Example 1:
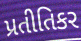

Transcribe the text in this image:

પ્રતીતિકર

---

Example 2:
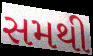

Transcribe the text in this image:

સમથી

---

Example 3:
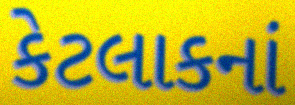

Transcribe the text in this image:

કેટલાકનાં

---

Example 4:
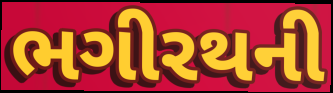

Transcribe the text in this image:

ભગીરથની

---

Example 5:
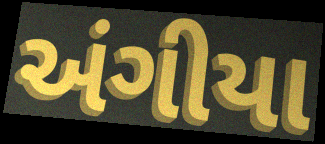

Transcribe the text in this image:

અંગીયા